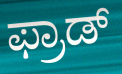
ಫ್ರಾಡ್